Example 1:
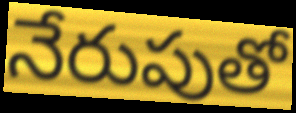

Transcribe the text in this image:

నేరుపుతో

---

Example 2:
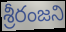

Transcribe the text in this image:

శ్రీరంజని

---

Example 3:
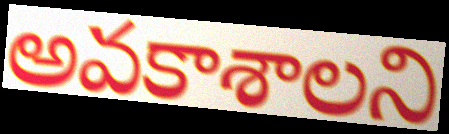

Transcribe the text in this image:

అవకాశాలని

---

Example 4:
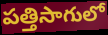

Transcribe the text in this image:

పత్తిసాగులో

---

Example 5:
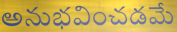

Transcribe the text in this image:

అనుభవించడమే